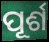
ପୂର୍ଶ